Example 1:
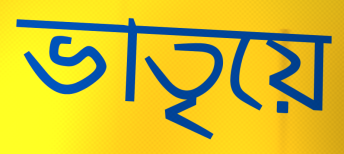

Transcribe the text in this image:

ভাতৃয়ে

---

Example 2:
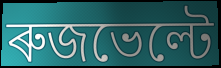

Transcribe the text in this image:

ৰুজভেল্টে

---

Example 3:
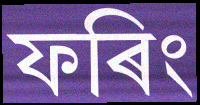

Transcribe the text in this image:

ফৰিং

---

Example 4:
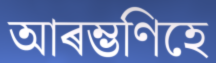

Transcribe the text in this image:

আৰম্ভণিহে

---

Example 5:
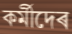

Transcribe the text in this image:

কৰ্মীদেৰ